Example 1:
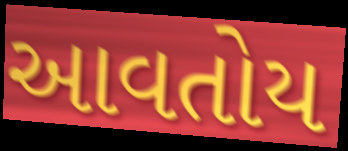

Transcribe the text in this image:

આવતોય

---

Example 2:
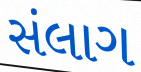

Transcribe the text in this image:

સંલાગ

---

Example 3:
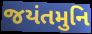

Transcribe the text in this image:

જયંતમુનિ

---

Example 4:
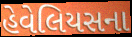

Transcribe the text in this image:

હેવેલિયસના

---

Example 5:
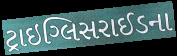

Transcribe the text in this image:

ટ્રાઇગ્લિસરાઈડના